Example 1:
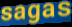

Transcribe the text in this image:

sagas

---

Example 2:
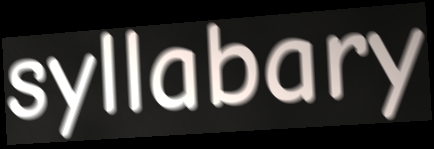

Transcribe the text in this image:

syllabary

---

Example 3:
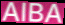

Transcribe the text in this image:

AIBA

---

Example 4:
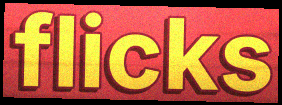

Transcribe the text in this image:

flicks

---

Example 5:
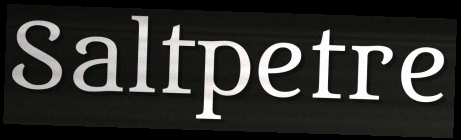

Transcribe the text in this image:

Saltpetre